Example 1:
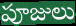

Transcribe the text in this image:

పూజులు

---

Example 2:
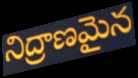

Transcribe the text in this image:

నిద్రాణమైన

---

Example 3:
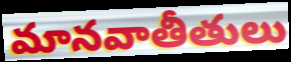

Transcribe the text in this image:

మానవాతీతులు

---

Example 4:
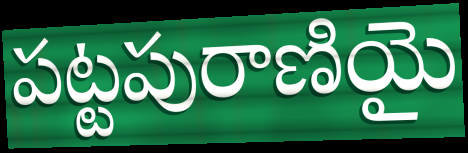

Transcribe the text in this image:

పట్టపురాణియై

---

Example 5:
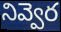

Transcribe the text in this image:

నివ్వెర